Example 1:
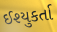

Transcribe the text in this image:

ઈશ્યુકર્તા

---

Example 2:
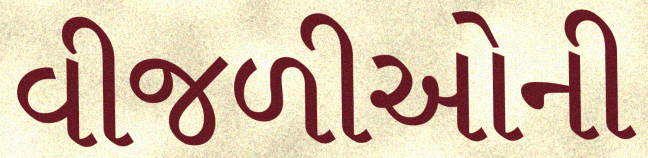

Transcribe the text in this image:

વીજળીઓની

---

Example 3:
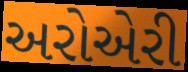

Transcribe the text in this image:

અરોએરી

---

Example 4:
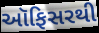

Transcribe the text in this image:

ઑફિસરથી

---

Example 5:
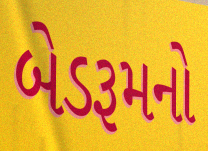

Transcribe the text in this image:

બેડરૂમનો